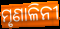
ମୃଣାଳିନୀ